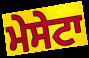
ਮੇਸੇਟਾ